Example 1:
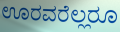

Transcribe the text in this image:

ಊರವರೆಲ್ಲರೂ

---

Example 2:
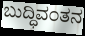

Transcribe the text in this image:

ಬುದ್ಧಿವಂತನ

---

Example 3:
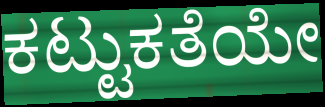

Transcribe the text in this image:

ಕಟ್ಟುಕತೆಯೇ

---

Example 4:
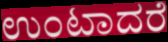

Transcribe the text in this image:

ಉಂಟಾದರೆ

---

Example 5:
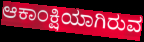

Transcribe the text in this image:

ಆಕಾಂಕ್ಷಿಯಾಗಿರುವ